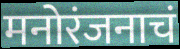
मनोरंजनाचं